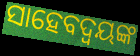
ସାହେବଦ୍ୱୟଙ୍କ